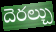
దెరల్చు